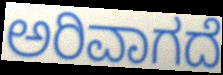
ಅರಿವಾಗದೆ